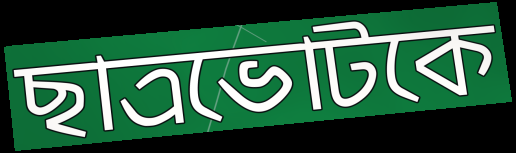
ছাত্রভোটকে